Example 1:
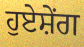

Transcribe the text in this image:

ਹੁਏਸ਼ੇਂਗ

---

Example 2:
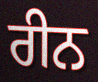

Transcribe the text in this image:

ਰੀਨ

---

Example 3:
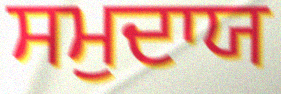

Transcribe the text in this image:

ਸਮੁਦਾਯ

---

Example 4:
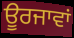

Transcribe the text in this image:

ਊਰਜਾਵਾਂ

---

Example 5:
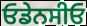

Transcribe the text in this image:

ਓਡੇਨਸੀਓ